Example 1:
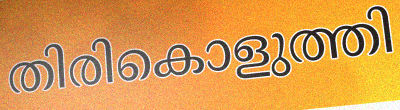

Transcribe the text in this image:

തിരികൊളുത്തി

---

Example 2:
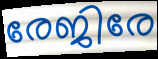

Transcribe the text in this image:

രേജിരേ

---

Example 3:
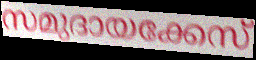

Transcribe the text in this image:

സമുദായക്കേസ്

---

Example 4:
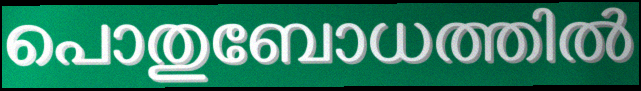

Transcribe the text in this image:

പൊതുബോധത്തിൽ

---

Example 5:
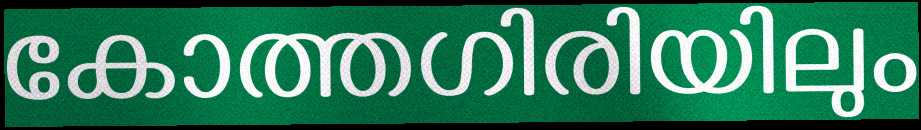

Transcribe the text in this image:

കോത്തഗിരിയിലും